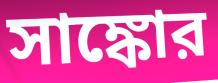
সাঙ্কোর